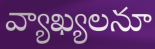
వ్యాఖ్యలనూ